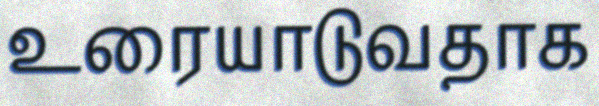
உரையாடுவதாக